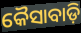
କୈସାବାଡ଼ି